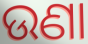
ଉଣା